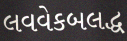
લવવેકબલદ્ધ